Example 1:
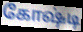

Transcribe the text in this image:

கோஷ்டி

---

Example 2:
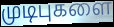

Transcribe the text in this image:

முடிபுகளை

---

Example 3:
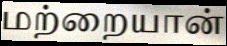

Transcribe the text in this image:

மற்றையான்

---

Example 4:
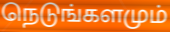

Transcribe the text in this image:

நெடுங்களமும்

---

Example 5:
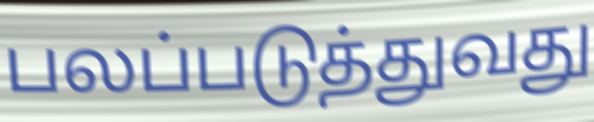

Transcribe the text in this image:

பலப்படுத்துவது